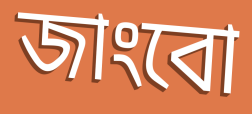
জাংবো